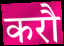
करौ